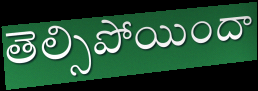
తెల్సిపోయిందా